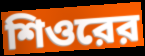
শিওরের